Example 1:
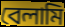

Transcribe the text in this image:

বেলামি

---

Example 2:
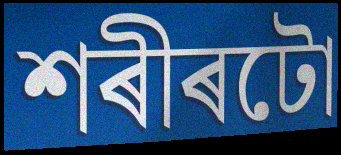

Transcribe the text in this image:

শৰীৰটো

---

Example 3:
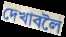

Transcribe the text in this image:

দেখাবলৈ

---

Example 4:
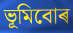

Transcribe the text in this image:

ভূমিবোৰ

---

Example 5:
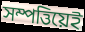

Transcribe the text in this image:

সম্পত্তিয়েই